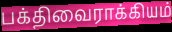
பக்திவைராக்கியம்